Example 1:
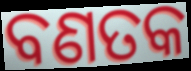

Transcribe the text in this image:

ବଣତକ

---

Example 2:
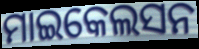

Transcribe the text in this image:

ମାଇକେଲସନ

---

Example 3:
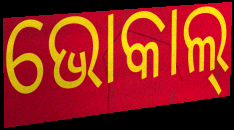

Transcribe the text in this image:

ଭୋକାଲ୍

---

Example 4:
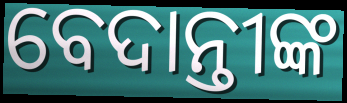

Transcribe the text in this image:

ବେଦାନ୍ତୀଙ୍କ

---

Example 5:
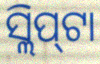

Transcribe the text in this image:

ସ୍ଲିପ୍‌ଟା